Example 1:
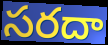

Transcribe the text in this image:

సరదా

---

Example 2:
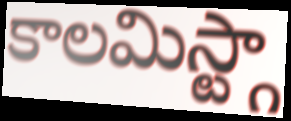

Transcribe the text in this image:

కాలమిస్ట్గా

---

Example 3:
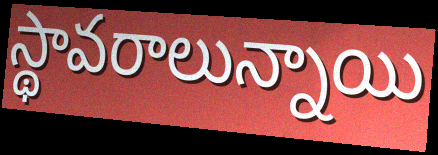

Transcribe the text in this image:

స్థావరాలున్నాయి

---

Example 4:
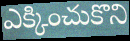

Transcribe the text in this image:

ఎక్కించుకొని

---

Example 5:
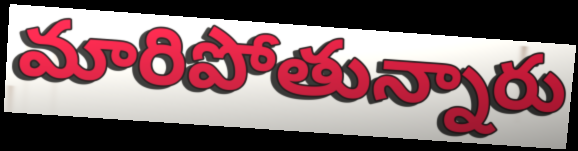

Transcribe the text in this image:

మారిపోతున్నారు